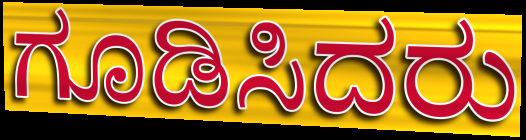
ಗೂಡಿಸಿದರು